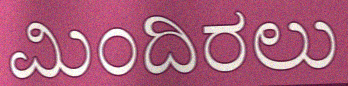
ಮಿಂದಿರಲು